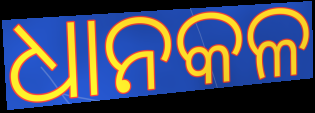
ଧାନକଳ